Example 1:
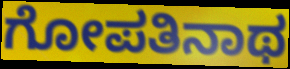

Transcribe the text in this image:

ಗೋಪತಿನಾಥ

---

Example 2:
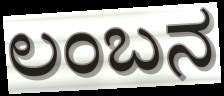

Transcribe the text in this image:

ಲಂಬನ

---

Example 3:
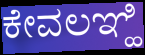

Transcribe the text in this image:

ಕೇವಲಞ್ಹಿ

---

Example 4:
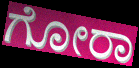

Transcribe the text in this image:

ಗೋರಾ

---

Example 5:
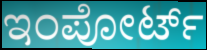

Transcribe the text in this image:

ಇಂಪೋರ್ಟ್